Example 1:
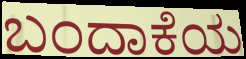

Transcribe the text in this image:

ಬಂದಾಕೆಯ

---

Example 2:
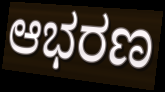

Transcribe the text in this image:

ಆಭರಣ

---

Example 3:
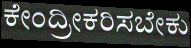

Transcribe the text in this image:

ಕೇಂದ್ರೀಕರಿಸಬೇಕು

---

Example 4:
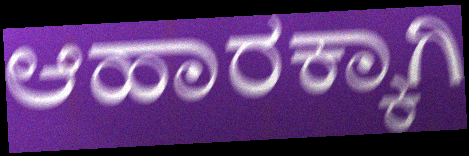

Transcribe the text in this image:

ಆಹಾರಕ್ಕಾಗಿ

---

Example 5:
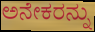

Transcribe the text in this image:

ಅನೇಕರನ್ನು